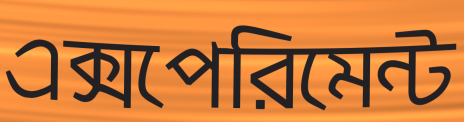
এক্সপেরিমেন্ট